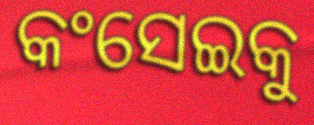
କଂସେଇକୁ